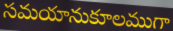
సమయానుకూలముగా